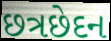
છત્રછેદન